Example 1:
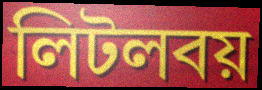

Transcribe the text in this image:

লিটলবয়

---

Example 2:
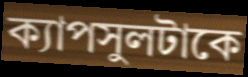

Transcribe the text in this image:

ক্যাপসুলটাকে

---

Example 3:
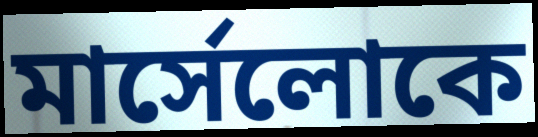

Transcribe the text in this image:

মার্সেলোকে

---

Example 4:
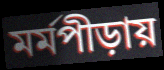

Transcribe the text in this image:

মর্মপীড়ায়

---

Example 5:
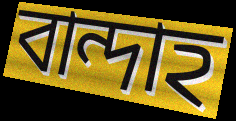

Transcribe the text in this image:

বান্দাহ